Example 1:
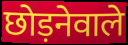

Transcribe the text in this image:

छोड़नेवाले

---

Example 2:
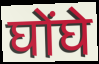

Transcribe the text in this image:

घोंघे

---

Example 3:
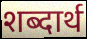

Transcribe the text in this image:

शब्दार्थ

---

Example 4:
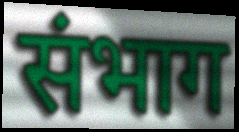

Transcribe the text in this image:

संभाग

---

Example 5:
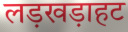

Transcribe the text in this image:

लड़खड़ाहट